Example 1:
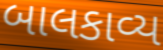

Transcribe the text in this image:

બાલકાવ્ય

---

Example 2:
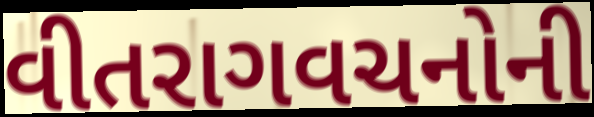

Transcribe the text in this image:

વીતરાગવચનોની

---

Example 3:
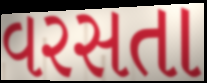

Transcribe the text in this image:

વરસતા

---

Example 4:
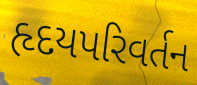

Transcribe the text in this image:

હૃદયપરિવર્તન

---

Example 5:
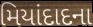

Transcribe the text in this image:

મિયાંદાદના